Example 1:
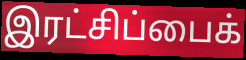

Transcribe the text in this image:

இரட்சிப்பைக்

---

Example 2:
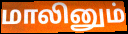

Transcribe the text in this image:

மாலினும்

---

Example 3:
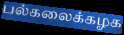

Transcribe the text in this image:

பல்கலைக்கழக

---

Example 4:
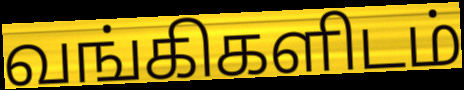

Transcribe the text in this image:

வங்கிகளிடம்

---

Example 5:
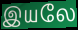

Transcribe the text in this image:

இயலே